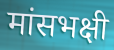
मांसभक्षी